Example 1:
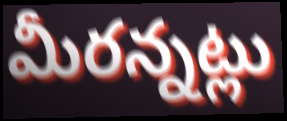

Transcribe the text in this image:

మీరన్నట్లు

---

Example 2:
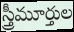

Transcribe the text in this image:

స్త్రీమూర్తుల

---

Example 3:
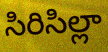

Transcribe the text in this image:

సిరిసిల్లా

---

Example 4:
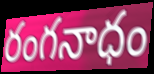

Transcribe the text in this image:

రంగనాధం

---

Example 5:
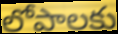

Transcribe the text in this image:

లోపాలకు